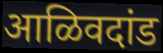
आळिवदांड